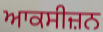
ਆਕਸੀਜ਼ਨ